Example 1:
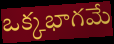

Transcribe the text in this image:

ఒక్కభాగమే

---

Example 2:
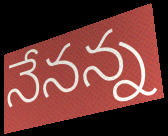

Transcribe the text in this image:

నేనన్న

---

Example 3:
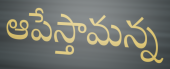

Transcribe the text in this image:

ఆపేస్తామన్న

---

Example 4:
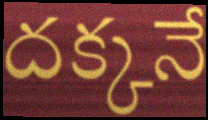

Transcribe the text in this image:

దక్కనే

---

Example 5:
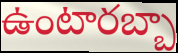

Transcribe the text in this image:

ఉంటారబ్బా